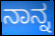
ನಾನ್ನ